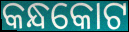
କନ୍ଧକୋଟ